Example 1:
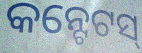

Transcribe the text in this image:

କନ୍ଟେଟସ୍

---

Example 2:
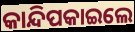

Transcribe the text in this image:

କାନ୍ଦିପକାଇଲେ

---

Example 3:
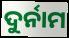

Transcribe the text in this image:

ଦୁର୍ନାମ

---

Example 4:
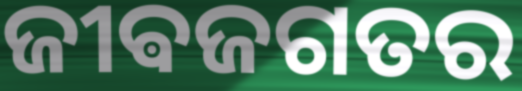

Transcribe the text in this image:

ଜୀଵଜଗତର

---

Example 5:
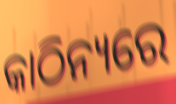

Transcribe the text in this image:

କାଠିନ୍ୟରେ